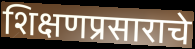
शिक्षणप्रसाराचे